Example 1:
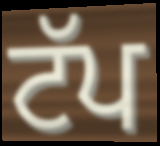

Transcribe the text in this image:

ਟੱਪ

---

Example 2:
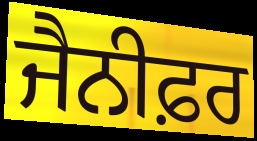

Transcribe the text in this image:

ਜੈਨੀਫ਼ਰ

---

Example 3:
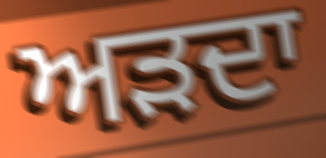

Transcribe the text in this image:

ਅੜਦਾ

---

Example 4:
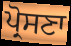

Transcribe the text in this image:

ਪ੍ਰੋਸਣਾ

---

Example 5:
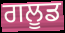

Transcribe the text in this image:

ਗਲੂਡ